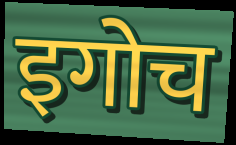
इगोच